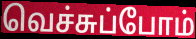
வெச்சுப்போம்